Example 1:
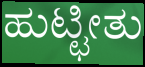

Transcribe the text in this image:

ಹುಟ್ಟೀತು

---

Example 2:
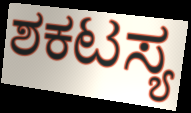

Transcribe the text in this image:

ಶಕಟಸ್ಯ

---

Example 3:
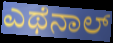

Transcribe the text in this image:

ಎಥೆನಾಲ್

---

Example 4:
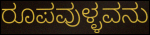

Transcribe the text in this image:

ರೂಪವುಳ್ಳವನು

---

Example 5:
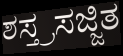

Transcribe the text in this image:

ಶಸ್ತ್ರಸಜ್ಜಿತ